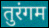
तुरंगम